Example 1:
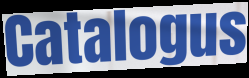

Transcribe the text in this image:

Catalogus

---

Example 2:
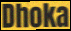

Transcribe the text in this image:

Dhoka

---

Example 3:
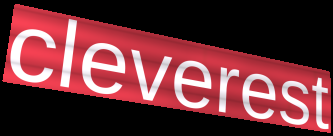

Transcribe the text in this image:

cleverest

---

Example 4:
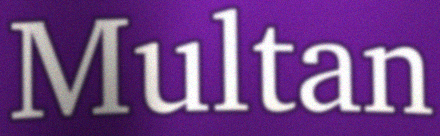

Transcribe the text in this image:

Multan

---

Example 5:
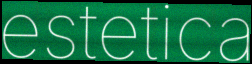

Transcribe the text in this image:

estetica